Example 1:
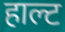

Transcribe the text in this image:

हाल्ट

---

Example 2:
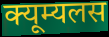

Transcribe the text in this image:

क्यूम्यलस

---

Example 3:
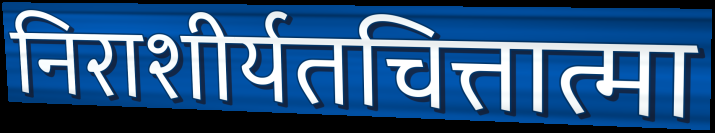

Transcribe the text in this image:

निराशीर्यतचित्तात्मा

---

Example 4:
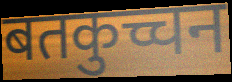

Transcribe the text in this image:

बतकुच्चन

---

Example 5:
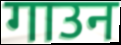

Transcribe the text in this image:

गाउन